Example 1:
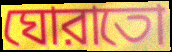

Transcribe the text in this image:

ঘোরাতো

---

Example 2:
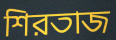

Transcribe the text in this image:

শিরতাজ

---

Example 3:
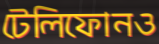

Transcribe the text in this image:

টেলিফোনও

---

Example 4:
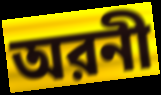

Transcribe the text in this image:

অরনী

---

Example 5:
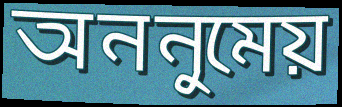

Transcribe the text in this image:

অননুমেয়